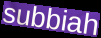
subbiah